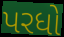
પરધો